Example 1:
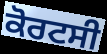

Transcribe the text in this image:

ਕੋਰਟਸੀ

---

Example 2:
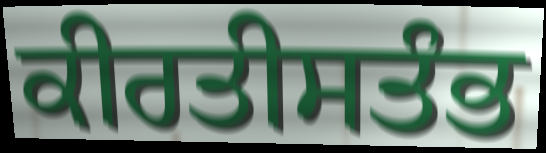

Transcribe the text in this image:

ਕੀਰਤੀਸਤੰਭ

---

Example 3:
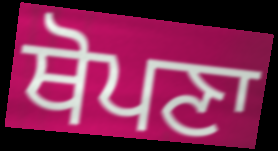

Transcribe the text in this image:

ਥੋਪਣਾ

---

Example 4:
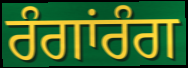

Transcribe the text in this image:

ਰੰਗਾਂਰੰਗ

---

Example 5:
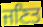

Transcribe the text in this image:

ਜਣਿਤ